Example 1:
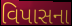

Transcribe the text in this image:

વિપાસના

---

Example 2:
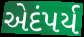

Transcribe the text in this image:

એદંપર્ય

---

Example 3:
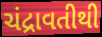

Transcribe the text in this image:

ચંદ્રાવતીથી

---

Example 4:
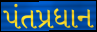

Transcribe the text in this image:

પંતપ્રધાન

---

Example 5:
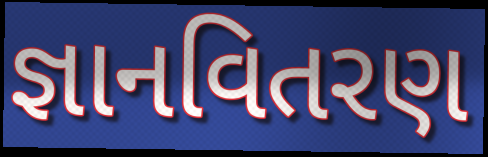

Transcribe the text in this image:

જ્ઞાનવિતરણ